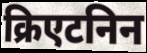
क्रिएटनिन